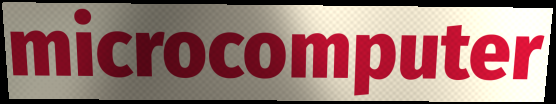
microcomputer